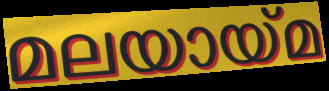
മലയായ്മ